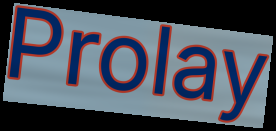
Prolay